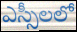
ఎస్సీలలో